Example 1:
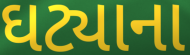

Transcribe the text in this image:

ઘટ્યાના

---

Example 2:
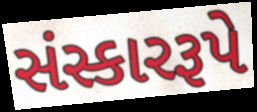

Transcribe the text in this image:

સંસ્કારરૂપે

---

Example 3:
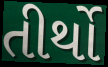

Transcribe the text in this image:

તીર્થો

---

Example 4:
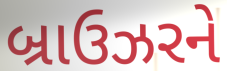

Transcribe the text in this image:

બ્રાઉઝરને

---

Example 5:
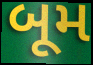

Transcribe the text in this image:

બૂમ